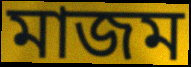
মাজম